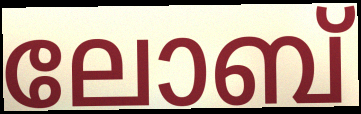
ലോബ്